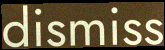
dismiss